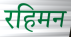
रहिमन